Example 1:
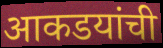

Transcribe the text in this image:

आकडयांची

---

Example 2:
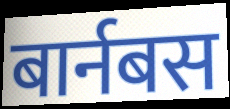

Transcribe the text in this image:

बार्नबस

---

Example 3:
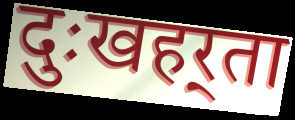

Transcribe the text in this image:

दुःखहर्ता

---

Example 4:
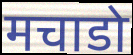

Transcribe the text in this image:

मचाडो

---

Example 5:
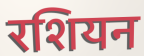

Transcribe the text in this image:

रशियन